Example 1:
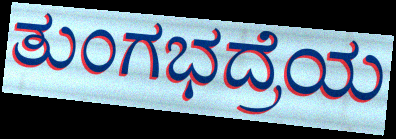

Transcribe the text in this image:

ತುಂಗಭದ್ರೆಯ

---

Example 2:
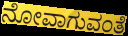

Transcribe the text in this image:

ನೋವಾಗುವಂತೆ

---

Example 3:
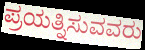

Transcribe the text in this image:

ಪ್ರಯತ್ನಿಸುವವರು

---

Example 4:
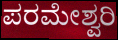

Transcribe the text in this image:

ಪರಮೇಶ್ವರಿ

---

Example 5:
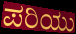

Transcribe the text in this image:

ಪರಿಯು